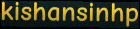
kishansinhp